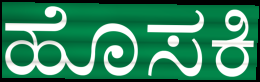
ಹೊಸಕಿ